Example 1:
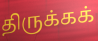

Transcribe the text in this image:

திருக்கக்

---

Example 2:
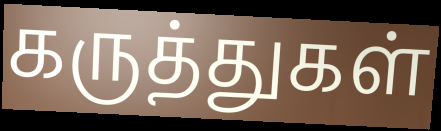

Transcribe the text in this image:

கருத்துகள்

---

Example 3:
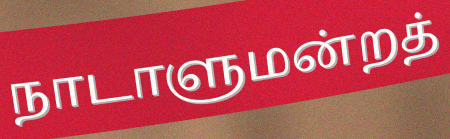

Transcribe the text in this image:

நாடாளுமன்றத்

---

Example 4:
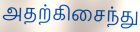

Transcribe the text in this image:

அதற்கிசைந்து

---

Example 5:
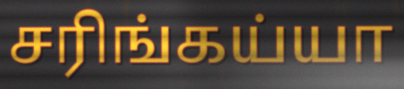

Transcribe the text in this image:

சரிங்கய்யா